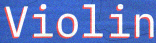
Violin